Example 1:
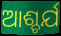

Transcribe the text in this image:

ଆଶ୍ଚର୍ଯ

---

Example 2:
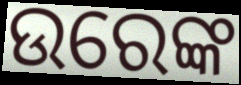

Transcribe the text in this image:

ଉରେଙ୍କ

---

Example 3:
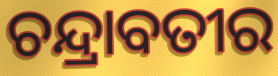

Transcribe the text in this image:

ଚନ୍ଦ୍ରାବତୀର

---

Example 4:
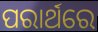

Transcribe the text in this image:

ପରାର୍ଥରେ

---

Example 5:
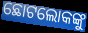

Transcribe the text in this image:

ଛୋଟଲୋକଙ୍କୁ